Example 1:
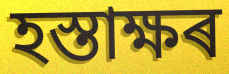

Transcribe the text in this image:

হস্তাক্ষৰ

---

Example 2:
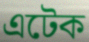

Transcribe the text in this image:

এটেক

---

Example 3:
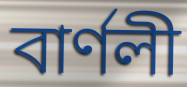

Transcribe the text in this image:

বাৰ্ণলী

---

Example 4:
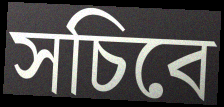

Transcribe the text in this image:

সচিবে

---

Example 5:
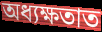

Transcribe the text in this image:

অধ্যক্ষতাত